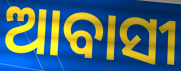
ଆବାସୀ